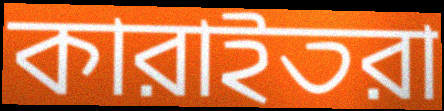
কারাইতরা